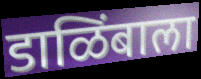
डाळिंबाला